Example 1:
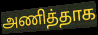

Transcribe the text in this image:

அணித்தாக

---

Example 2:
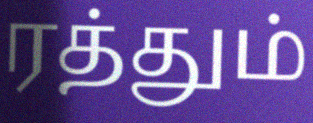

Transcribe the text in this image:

ரத்தும்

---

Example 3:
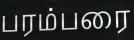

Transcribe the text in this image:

பரம்பரை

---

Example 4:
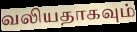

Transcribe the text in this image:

வலியதாகவும்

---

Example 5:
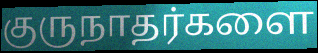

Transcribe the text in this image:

குருநாதர்களை